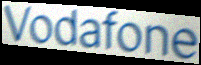
Vodafone